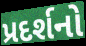
પ્રદર્શનો